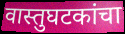
वास्तुघटकांचा